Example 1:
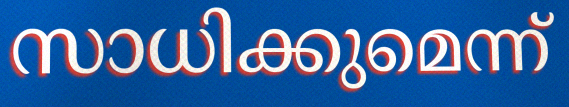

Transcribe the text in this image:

സാധിക്കുമെന്ന്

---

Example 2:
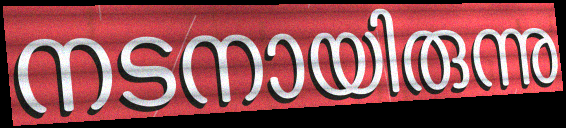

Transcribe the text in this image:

നടനായിരുന്നു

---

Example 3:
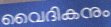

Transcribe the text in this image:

വൈദികനും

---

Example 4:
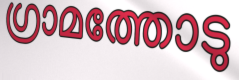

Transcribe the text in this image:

ഗ്രാമത്തോടു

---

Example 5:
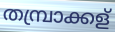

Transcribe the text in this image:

തമ്പ്രാക്കള്